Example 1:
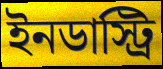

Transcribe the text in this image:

ইনডাস্ট্রি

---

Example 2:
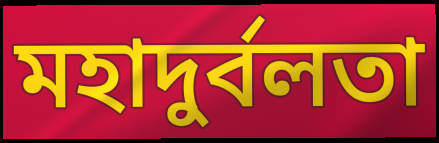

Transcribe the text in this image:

মহাদুর্বলতা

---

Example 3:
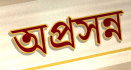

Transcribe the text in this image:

অপ্রসন্ন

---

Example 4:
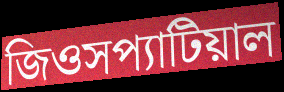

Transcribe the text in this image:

জিওসপ্যাটিয়াল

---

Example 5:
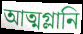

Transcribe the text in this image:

আত্মগ্লানি